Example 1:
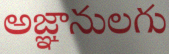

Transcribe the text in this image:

అజ్ఞానులగు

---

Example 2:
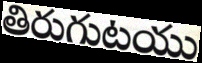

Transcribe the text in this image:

తిరుగుటయు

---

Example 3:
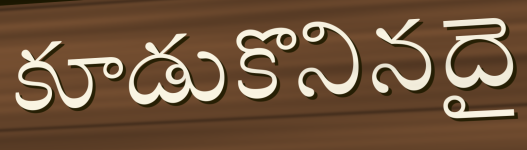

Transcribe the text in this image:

కూడుకొనినదై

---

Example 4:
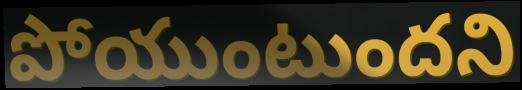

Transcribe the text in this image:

పోయుంటుందని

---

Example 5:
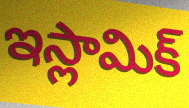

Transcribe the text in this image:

ఇస్లామిక్